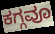
ಕಗ್ಗವೂ